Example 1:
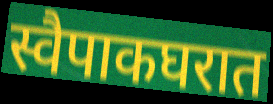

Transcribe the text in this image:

स्वैपाकघरात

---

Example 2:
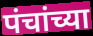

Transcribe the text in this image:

पंचांच्या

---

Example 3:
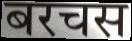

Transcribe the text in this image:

बरचस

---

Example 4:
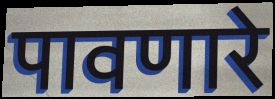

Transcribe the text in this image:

पावणारे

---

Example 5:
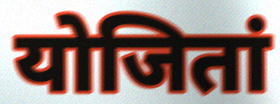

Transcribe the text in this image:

योजितां